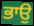
ਭਾਉ